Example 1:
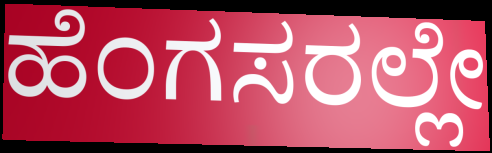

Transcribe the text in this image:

ಹೆಂಗಸರಲ್ಲೇ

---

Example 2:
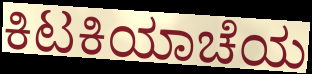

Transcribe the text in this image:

ಕಿಟಕಿಯಾಚೆಯ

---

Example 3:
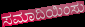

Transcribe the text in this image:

ಸಮಾದಿಯಿಂಸು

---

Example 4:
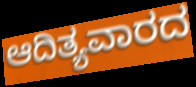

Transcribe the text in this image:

ಆದಿತ್ಯವಾರದ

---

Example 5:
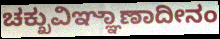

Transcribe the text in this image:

ಚಕ್ಖುವಿಞ್ಞಾಣಾದೀನಂ